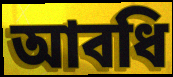
আবধি